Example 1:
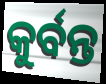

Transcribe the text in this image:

କୁର୍ବନ୍ତ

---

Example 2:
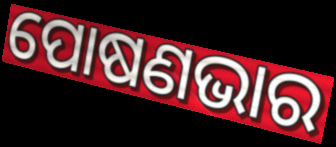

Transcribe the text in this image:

ପୋଷଣଭାର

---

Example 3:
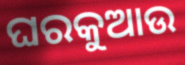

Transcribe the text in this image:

ଘରକୁଆଉ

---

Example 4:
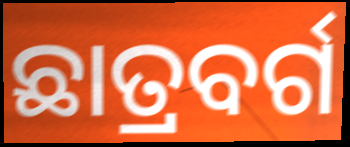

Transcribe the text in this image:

ଛାତ୍ରବର୍ଗ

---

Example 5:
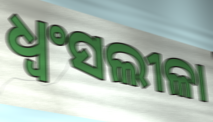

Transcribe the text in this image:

ଧ୍ୱଂସଲୀଳା